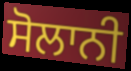
ਸੋਲਾਨੀ